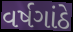
વર્ષગાંઠે